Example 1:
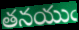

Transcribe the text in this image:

తనయుఁ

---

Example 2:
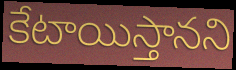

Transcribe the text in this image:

కేటాయిస్తానని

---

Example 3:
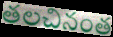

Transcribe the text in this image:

తలచినంత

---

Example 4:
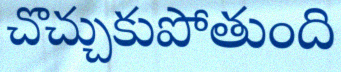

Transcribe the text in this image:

చొచ్చుకుపోతుంది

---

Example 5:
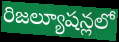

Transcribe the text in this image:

రిజల్యూషన్లలో